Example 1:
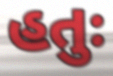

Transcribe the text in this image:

હતુઃ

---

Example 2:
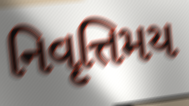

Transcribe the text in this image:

નિવૃત્તિમય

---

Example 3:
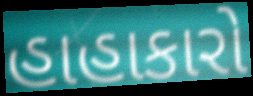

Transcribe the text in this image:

હાહાકારો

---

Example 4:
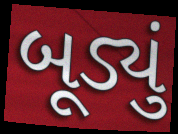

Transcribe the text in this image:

બૂડ્યું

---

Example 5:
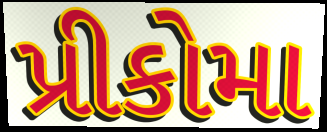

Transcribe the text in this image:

પ્રીકોમા